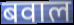
बवाल